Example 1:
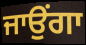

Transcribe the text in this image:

ਜਾਉਂਗਾ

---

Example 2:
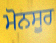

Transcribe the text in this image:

ਮੋਨਸੂਰ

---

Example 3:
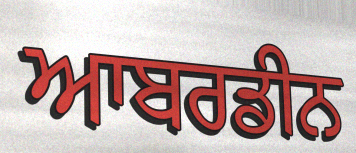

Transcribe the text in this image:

ਆਬਰਡੀਨ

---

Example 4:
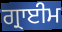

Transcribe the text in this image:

ਗ੍ਰਾਈਮ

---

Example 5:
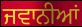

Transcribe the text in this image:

ਜਵਾਨੀਆਂ